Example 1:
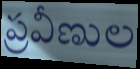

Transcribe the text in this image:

ప్రవీణుల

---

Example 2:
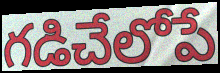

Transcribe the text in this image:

గడిచేలోపే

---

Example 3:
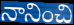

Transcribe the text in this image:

నానించి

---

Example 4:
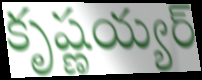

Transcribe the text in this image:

కృష్ణయ్యర్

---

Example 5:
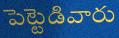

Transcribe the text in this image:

పెట్టెడివారు